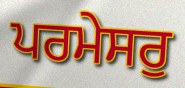
ਪਰਮੇਸਰੁ